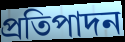
প্রতিপাদন